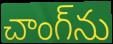
చాంగ్‌ను